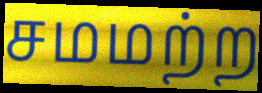
சமமற்ற